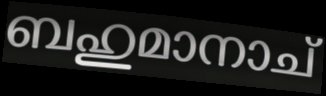
ബഹുമാനാച്